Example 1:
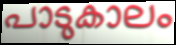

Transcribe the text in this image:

പാടുകാലം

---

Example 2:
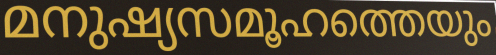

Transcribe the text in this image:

മനുഷ്യസമൂഹത്തെയും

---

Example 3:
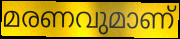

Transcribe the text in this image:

മരണവുമാണ്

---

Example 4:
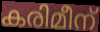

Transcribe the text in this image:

കരിമീന്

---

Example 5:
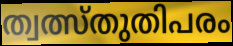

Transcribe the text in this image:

ത്വത്സ്തുതിപരം